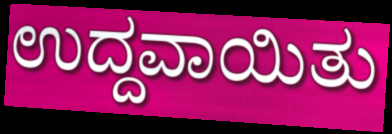
ಉದ್ದವಾಯಿತು